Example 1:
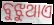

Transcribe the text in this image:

ବୁଝୁଥାଏ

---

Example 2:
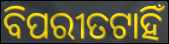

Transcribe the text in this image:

ବିପରୀତଟାହିଁ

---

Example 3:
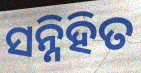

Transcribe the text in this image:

ସନ୍ନିହିତ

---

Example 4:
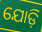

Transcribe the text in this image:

ଯୋଡ଼ି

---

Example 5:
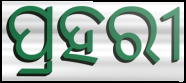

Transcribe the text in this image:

ପ୍ରହରୀ